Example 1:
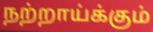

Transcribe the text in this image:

நற்றாய்க்கும்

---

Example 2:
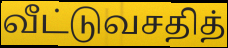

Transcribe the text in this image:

வீட்டுவசதித்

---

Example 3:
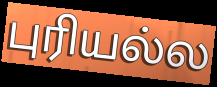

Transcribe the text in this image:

புரியல்ல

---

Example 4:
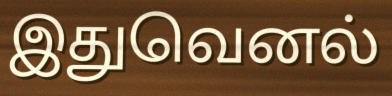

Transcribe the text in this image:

இதுவெனல்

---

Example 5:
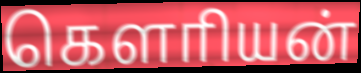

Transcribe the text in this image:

கௌரியன்